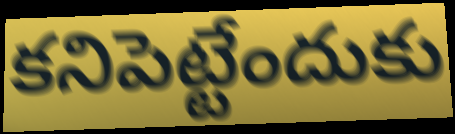
కనిపెట్టేందుకు